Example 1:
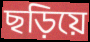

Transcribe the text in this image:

ছড়িয়ে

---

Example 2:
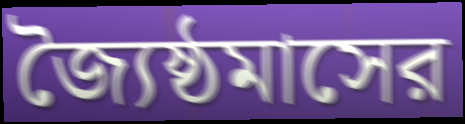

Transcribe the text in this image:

জ্যৈষ্ঠমাসের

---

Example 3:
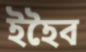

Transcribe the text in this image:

ইহৈব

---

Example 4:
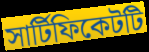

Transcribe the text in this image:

সার্টিফিকেটটি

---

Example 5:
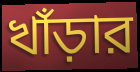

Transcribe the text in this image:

খাঁড়ার